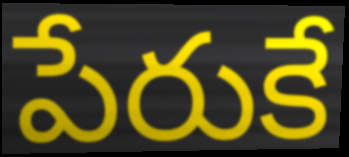
పేరుకే